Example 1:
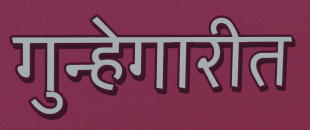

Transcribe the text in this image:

गुन्हेगारीत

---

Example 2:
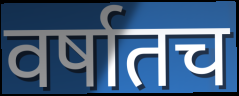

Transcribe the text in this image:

वर्षातच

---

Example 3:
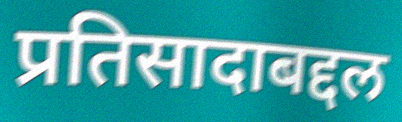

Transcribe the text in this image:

प्रतिसादाबद्दल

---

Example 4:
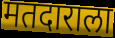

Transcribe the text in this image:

मतदाराला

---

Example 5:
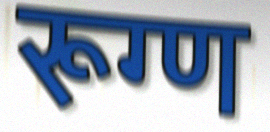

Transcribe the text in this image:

रूग्ण